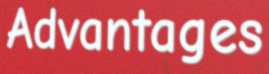
Advantages